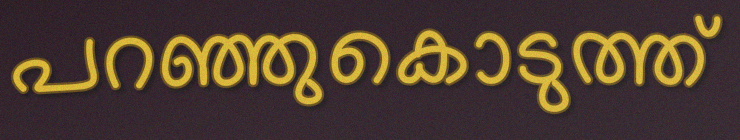
പറഞ്ഞുകൊടുത്ത്